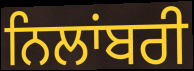
ਨਿਲਾਂਬਰੀ